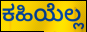
ಕಹಿಯೆಲ್ಲ